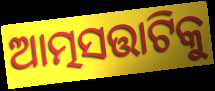
ଆତ୍ମସତ୍ତାଟିକୁ